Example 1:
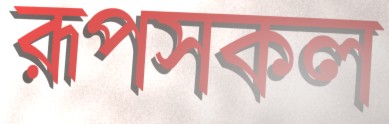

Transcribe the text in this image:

রূপসকল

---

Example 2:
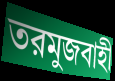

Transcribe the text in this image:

তরমুজবাহী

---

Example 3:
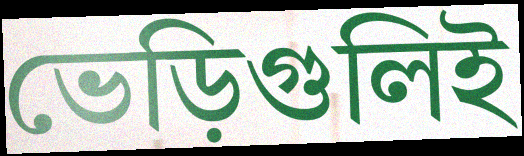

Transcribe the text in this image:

ভেড়িগুলিই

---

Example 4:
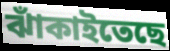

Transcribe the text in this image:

ঝাঁকাইতেছে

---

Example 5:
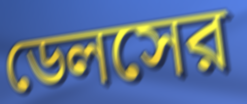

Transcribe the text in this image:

ডেলসের